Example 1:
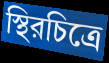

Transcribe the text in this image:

স্থিরচিত্রে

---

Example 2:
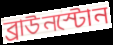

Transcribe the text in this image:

ব্রাউনস্টোন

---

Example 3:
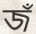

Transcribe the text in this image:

জঁ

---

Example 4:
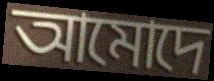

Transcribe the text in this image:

আমোদে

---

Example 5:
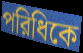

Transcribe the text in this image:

পরিধিকে